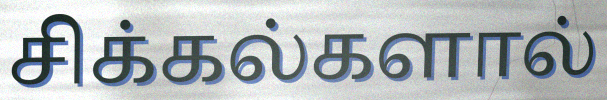
சிக்கல்களால்